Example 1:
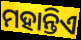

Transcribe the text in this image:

ମହାନ୍ତିଏ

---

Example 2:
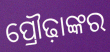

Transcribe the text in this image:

ପ୍ରୌଢ଼ାଙ୍କର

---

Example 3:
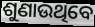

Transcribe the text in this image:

ଶୁଣାଉଥିବେ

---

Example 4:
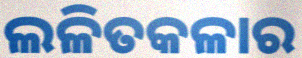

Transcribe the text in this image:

ଲଳିତକଳାର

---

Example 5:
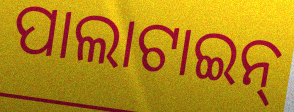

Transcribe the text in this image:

ପାଲାଟାଇନ୍